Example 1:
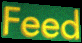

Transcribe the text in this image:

Feed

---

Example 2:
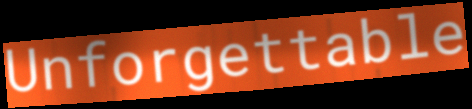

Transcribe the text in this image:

Unforgettable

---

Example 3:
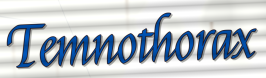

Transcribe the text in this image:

Temnothorax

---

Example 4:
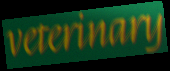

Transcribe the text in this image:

veterinary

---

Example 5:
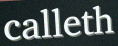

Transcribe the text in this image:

calleth